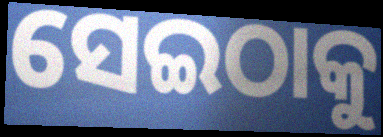
ସେଇଠାକୁ